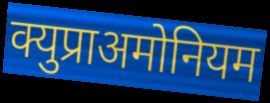
क्युप्राअमोनियम